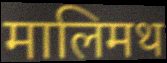
मालिमथ